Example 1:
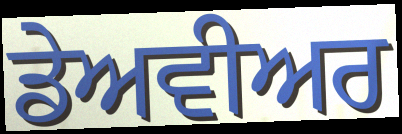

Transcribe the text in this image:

ਡੇਅਵੀਅਰ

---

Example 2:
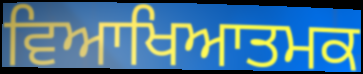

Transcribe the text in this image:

ਵਿਆਖਿਆਤਮਕ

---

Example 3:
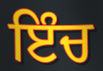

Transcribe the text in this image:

ਇੰਚ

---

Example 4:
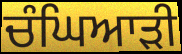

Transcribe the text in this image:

ਚੰਘਿਆੜੀ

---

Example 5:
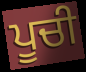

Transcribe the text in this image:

ਪੂਚੀ